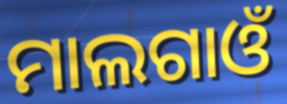
ମାଲଗାଓଁ